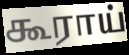
கூராய்